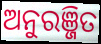
ଅନୁରଞ୍ଜିତ